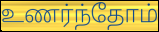
உணர்ந்தோம்